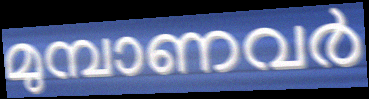
മുമ്പാണവർ